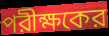
পরীক্ষকের